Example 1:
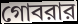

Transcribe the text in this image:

গোবরার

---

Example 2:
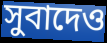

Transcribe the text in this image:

সুবাদেও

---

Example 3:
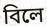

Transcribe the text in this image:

বিলে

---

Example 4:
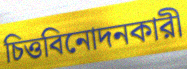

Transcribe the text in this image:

চিত্তবিনোদনকারী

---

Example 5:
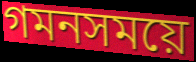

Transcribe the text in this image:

গমনসময়ে